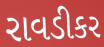
રાવડીકર